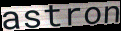
astron